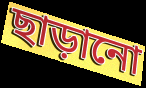
ছাড়ানো